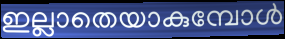
ഇല്ലാതെയാകുമ്പോൾ